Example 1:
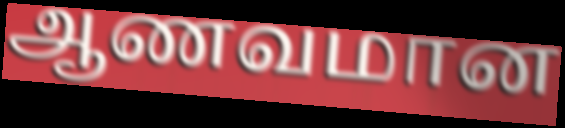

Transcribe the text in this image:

ஆணவமான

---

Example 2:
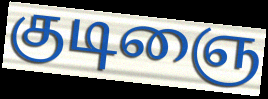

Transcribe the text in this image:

குடிஞை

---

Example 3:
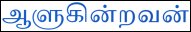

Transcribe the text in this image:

ஆளுகின்றவன்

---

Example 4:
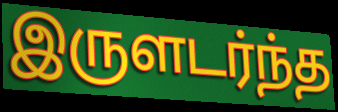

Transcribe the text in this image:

இருளடர்ந்த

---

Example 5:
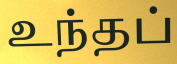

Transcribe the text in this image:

உந்தப்